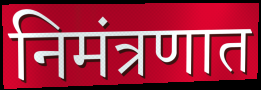
निमंत्रणात